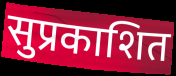
सुप्रकाशित